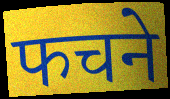
फचने